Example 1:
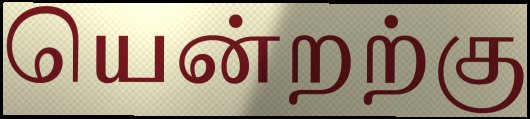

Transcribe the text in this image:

யென்றற்கு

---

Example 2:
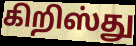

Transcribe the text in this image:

கிறிஸ்து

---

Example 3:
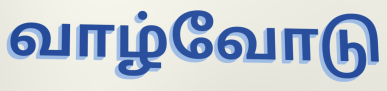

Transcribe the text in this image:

வாழ்வோடு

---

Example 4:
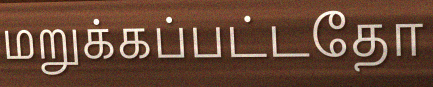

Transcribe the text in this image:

மறுக்கப்பட்டதோ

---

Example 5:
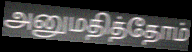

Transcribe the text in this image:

அனுமதித்தோம்